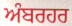
ਅੰਬਰਹਰ